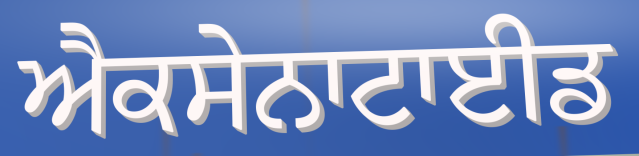
ਐਕਸੇਨਾਟਾਈਡ